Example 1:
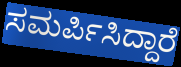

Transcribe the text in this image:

ಸಮರ್ಪಿಸಿದ್ದಾರೆ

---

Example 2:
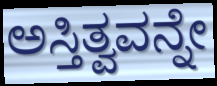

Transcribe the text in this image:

ಅಸ್ತಿತ್ವವನ್ನೇ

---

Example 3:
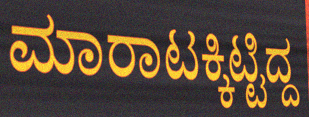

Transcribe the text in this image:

ಮಾರಾಟಕ್ಕಿಟ್ಟಿದ್ದ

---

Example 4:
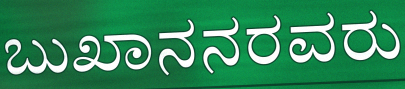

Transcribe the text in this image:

ಬುಖಾನನರವರು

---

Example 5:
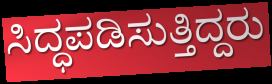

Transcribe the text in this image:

ಸಿದ್ಧಪಡಿಸುತ್ತಿದ್ದರು